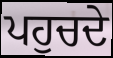
ਪਹੁਚਦੇ